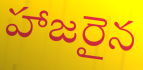
హాజరైన